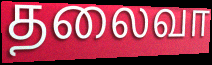
தலைவா